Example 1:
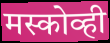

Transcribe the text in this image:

मस्कोव्ही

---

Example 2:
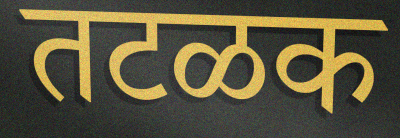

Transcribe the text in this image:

तटळक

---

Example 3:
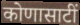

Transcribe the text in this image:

कोणासाटीं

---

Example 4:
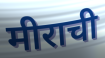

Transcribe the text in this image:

मीराची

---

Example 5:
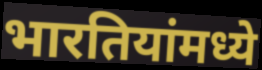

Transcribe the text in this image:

भारतियांमध्ये